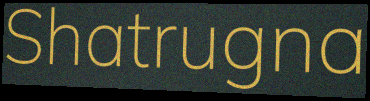
Shatrugna